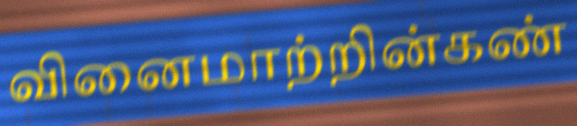
வினைமாற்றின்கண்